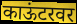
काऊंटरवर